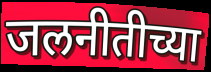
जलनीतीच्या